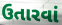
ઉતારવાં